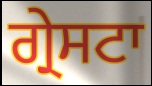
ਗ੍ਰੇਸਟਾ